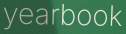
yearbook